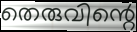
തെരുവിന്റെ